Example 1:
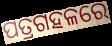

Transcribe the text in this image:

ପତ୍ରଗହଳରେ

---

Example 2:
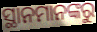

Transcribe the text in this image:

ସ୍ଥାନମାନଙ୍କରୁ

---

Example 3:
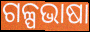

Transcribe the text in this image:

ଗଳ୍ପଭାଷା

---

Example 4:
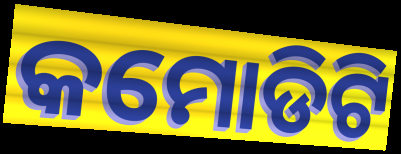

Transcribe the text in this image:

କମୋଡିଟି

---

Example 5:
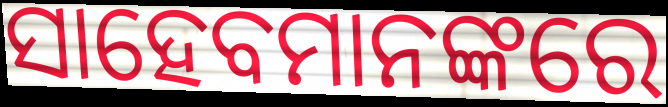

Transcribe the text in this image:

ସାହେବମାନଙ୍କରେ